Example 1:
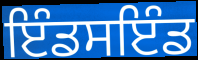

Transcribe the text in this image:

ਇੰਡਸਇੰਡ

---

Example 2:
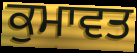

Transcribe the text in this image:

ਕੁਮਾਵਤ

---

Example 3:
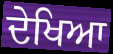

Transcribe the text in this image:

ਦੇਖਿਆ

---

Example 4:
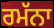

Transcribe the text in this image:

ਰਮੱਨਾ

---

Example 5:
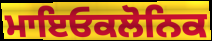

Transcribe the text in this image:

ਮਾਇਓਕਲੋਨਿਕ